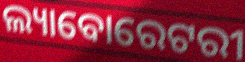
ଲ୍ୟାବୋରେଟରୀ